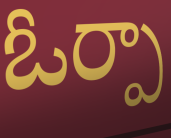
ఓర్పా